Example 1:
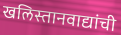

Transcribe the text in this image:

खलिस्तानवाद्यांची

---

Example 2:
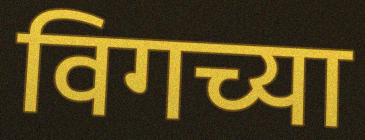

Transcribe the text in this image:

विगच्या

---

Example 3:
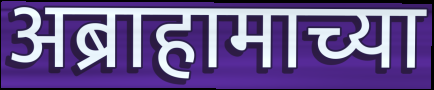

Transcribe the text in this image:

अब्राहामाच्या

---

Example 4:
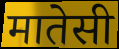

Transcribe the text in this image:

मातेसी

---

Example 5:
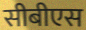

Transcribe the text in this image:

सीबीएस